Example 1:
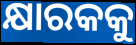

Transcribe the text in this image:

କ୍ଷାରକକୁ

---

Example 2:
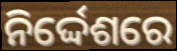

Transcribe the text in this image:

ନିର୍ଦ୍ଦେଶରେ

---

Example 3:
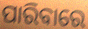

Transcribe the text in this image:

ପାରିବାରେ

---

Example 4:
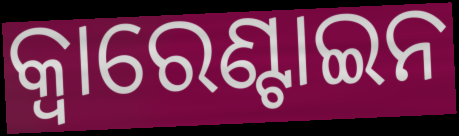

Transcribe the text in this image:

କ୍ୱାରେଣ୍ଟାଇନ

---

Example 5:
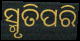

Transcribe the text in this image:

ସ୍ମୃତିପରି